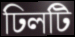
ঢিলটি